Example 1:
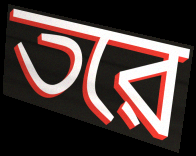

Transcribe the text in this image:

তৱে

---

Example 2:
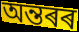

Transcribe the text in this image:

অন্তৰৰ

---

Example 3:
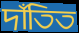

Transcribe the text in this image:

দাঁতিত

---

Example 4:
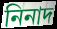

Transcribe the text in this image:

নিনাদ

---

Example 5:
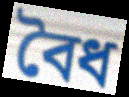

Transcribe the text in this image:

বৈধ